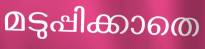
മടുപ്പിക്കാതെ